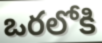
ఒరలోకి